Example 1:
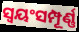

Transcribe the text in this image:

ସ୍ୱୟଂସମ୍ପୂର୍ଣ୍ଣ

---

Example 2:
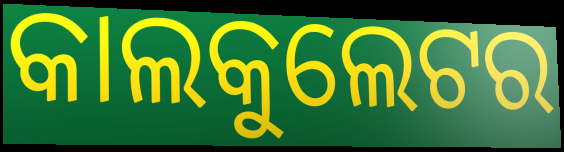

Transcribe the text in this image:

କାଲକୁଲେଟର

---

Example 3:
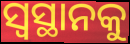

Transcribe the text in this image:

ସ୍ୱସ୍ଥାନକୁ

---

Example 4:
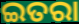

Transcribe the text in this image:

ଇତରା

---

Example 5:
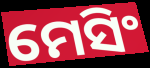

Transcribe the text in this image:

ମେସିଂ